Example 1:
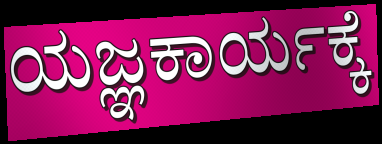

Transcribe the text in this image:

ಯಜ್ಞಕಾರ್ಯಕ್ಕೆ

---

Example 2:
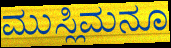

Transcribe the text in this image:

ಮುಸ್ಲಿಮನೂ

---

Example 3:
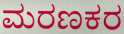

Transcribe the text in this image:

ಮರಣಕರ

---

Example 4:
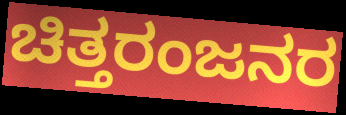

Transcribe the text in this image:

ಚಿತ್ತರಂಜನರ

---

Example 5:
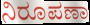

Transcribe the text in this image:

ನಿರೂಪಣಾ